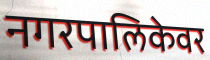
नगरपालिकेवर